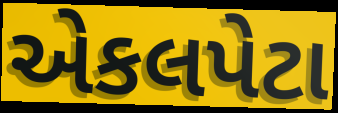
એકલપેટા